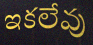
ఇకలేవు